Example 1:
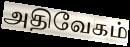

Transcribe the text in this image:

அதிவேகம்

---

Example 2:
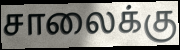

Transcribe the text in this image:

சாலைக்கு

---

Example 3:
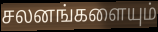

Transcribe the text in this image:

சலனங்களையும்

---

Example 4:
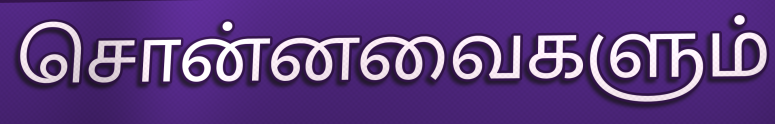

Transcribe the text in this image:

சொன்னவைகளும்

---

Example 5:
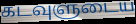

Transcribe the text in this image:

கடவுளுடைய